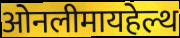
ओनलीमायहेल्थ